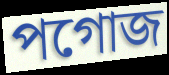
পগোজ